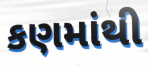
કણમાંથી